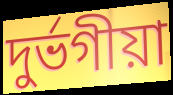
দুৰ্ভগীয়া